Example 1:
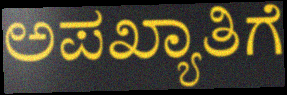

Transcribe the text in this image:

ಅಪಖ್ಯಾತಿಗೆ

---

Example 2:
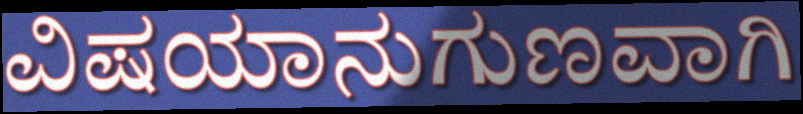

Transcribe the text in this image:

ವಿಷಯಾನುಗುಣವಾಗಿ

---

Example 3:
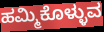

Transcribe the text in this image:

ಹಮ್ಮಿಕೊಳ್ಳುವ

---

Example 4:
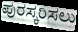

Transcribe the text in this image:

ಪುರಸ್ಕರಿಸಲು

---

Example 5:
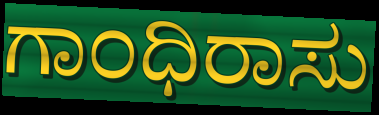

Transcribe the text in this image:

ಗಾಂಧಿರಾಸು